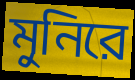
মুনিরে